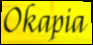
Okapia